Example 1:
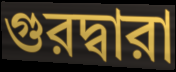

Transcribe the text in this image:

গুরদ্বারা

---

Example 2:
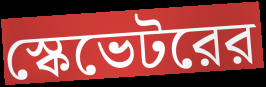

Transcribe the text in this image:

স্কেভেটরের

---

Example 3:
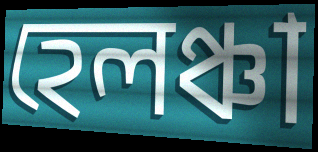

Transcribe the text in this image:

হেলঞ্চা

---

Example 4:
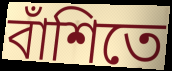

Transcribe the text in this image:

বাঁশিতে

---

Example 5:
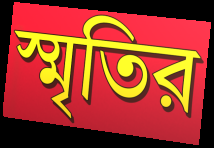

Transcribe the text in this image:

স্মৃতির